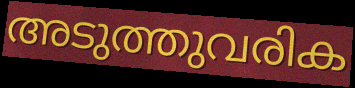
അടുത്തുവരിക